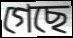
গেছে